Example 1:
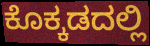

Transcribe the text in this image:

ಕೊಕ್ಕಡದಲ್ಲಿ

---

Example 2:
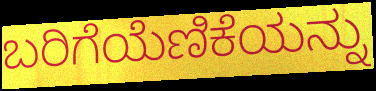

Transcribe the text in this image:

ಬರಿಗೆಯೆಣಿಕೆಯನ್ನು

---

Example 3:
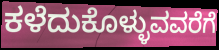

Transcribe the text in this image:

ಕಳೆದುಕೊಳ್ಳುವವರೆಗೆ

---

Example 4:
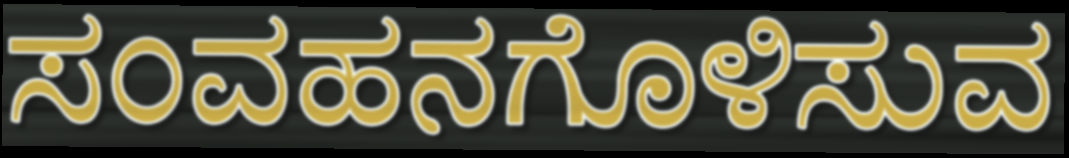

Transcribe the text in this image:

ಸಂವಹನಗೊಳಿಸುವ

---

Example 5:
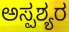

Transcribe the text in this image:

ಅಸ್ಪಶ್ಯರ